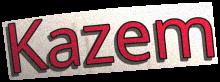
Kazem